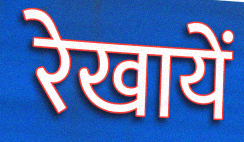
रेखायें